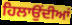
ਹਿਲਾਉਂਦੀਆਂ